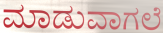
ಮಾಡುವಾಗಲೆ